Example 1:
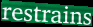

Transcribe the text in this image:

restrains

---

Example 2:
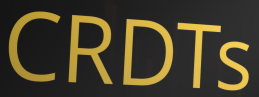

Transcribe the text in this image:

CRDTs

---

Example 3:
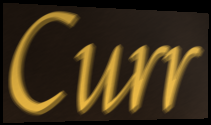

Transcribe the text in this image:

Curr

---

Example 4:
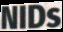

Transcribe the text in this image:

NIDs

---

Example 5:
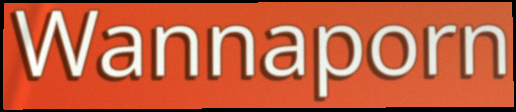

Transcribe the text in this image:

Wannaporn